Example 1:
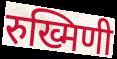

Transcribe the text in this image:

रुख्मिणी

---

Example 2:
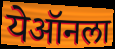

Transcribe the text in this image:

येऑनला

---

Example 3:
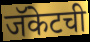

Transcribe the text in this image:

जॅकेटची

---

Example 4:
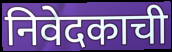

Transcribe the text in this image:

निवेदकाची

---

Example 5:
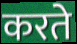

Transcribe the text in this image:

करते